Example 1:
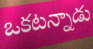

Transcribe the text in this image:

ఒకటన్నాడు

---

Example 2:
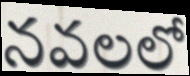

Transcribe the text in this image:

నవలలో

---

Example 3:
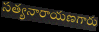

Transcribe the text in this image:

సత్యనారాయణగారు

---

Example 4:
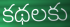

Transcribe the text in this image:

కథలకు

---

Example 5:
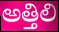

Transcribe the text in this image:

అత్తిలి